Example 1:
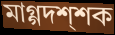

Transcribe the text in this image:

মাগ্গদশ্শক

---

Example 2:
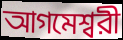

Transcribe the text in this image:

আগমেশ্বরী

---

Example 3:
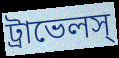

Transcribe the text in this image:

ট্রাভেলস্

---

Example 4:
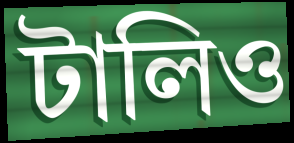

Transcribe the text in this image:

টালিও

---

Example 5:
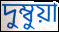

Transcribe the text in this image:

দুম্বুয়া